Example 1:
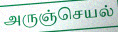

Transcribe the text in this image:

அருஞ்செயல்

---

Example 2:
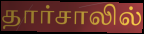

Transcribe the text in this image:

தார்சாலில்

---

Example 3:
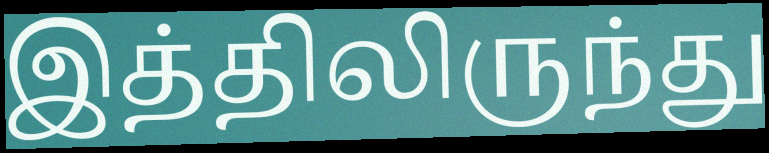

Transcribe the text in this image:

இத்திலிருந்து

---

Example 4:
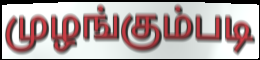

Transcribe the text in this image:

முழங்கும்படி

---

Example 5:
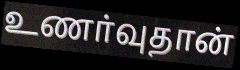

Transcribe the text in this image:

உணர்வுதான்